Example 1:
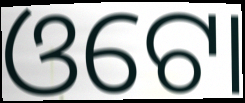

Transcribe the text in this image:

ଓଟୋ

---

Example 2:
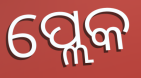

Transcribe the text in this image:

ପ୍ଲେକ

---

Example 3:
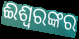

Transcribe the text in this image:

ଈଶ୍ୱରଙ୍କର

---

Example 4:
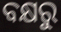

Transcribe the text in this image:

ବକ୍ଷରୁ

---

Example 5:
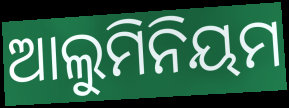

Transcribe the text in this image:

ଆଲୁମିନିୟମ